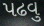
પઢવુ